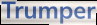
Trumper